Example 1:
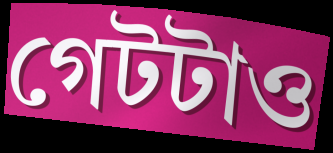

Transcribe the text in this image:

গেটটাও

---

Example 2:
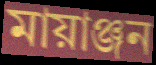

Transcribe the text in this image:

মায়াঞ্জন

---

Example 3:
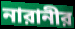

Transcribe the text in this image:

নারানীর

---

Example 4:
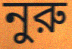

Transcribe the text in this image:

নুরু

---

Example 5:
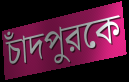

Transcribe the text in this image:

চাঁদপুরকে